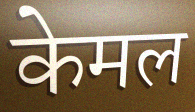
केमल